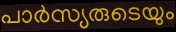
പാർസ്യരുടെയും